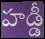
హడ్డీ